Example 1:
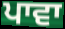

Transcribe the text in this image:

ਪਾਵਾ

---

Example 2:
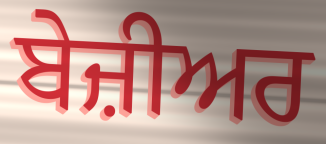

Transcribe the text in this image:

ਬੇਜ਼ੀਅਰ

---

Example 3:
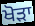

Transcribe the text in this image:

ਖੋੜਾ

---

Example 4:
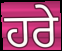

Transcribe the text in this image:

ਹਰੇ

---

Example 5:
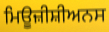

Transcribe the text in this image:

ਮਿਊਜ਼ੀਸ਼ੀਅਨਸ